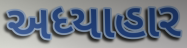
અધ્યાહાર